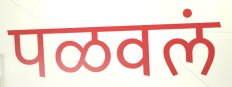
पळवलं